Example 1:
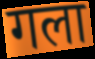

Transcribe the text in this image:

गला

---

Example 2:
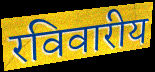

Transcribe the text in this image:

रविवारीय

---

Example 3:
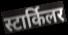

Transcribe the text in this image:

स्टार्किलर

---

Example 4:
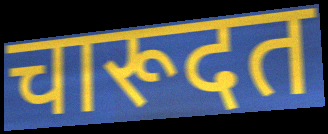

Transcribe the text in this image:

चारूदत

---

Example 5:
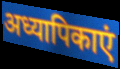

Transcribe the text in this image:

अध्यापिकाएं